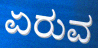
ಏರುವ